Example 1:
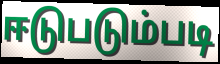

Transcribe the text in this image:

ஈடுபடும்படி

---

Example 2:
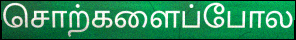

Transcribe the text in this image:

சொற்களைப்போல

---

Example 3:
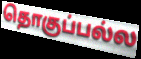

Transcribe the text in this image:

தொகுப்பல்ல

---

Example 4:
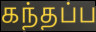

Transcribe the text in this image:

கந்தப்ப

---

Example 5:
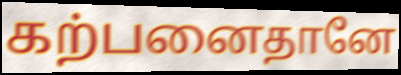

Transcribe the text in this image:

கற்பனைதானே